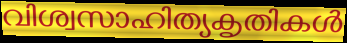
വിശ്വസാഹിത്യകൃതികൾ